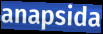
anapsida